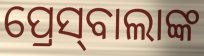
ପ୍ରେସ୍‌ବାଲାଙ୍କ